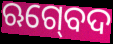
ଋଗ୍‍ବେଦ